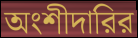
অংশীদারির